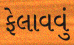
ફેલાવવું